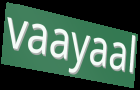
vaayaal